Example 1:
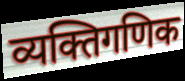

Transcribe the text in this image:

व्यक्तिगणिक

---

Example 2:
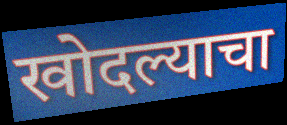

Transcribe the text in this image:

खोदल्याचा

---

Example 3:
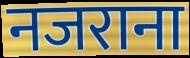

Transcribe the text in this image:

नजराना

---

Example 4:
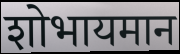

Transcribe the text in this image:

शोभायमान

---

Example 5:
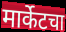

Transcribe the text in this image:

मार्केटचा